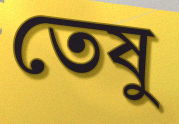
তেষু